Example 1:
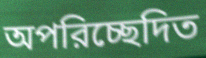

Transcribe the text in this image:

অপরিচ্ছেদিত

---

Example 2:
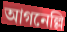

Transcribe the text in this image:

আগনেল্লি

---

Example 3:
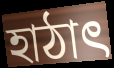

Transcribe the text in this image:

হাঠাৎ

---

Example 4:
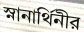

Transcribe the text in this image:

স্নানার্থিনীর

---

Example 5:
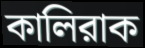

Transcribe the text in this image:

কালিরাক